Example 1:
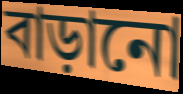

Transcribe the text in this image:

বাড়ানো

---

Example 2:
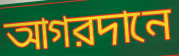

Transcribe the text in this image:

আগরদানে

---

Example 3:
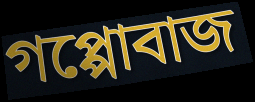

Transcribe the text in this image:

গপ্পোবাজ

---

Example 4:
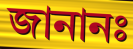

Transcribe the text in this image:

জানানঃ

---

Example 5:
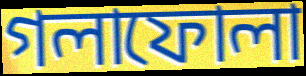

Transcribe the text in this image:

গলাফোলা